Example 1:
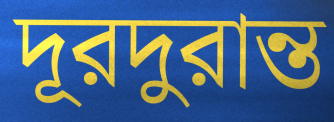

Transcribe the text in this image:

দূরদুরান্ত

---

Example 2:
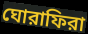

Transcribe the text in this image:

ঘোরাফিরা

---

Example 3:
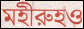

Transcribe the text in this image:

মহীরুহও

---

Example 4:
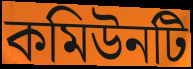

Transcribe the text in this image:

কমিউনটি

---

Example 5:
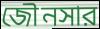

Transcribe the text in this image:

জৌনসার